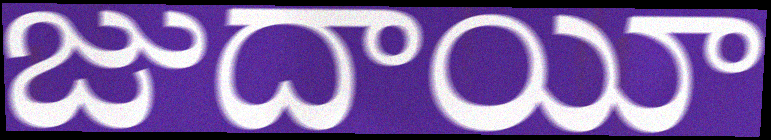
జుదాయీ